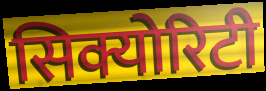
सिक्योरिटी